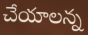
చేయాలన్న